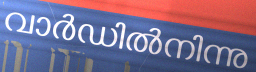
വാർഡിൽനിന്നു